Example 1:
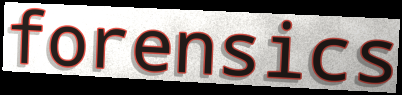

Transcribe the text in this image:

forensics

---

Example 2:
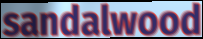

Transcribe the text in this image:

sandalwood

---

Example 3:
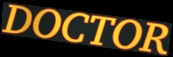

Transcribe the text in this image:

DOCTOR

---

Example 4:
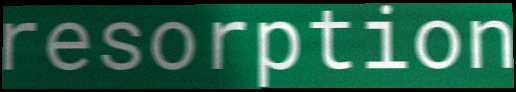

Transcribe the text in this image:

resorption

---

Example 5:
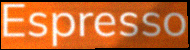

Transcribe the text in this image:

Espresso